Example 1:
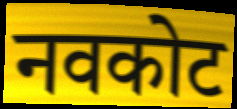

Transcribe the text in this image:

नवकोट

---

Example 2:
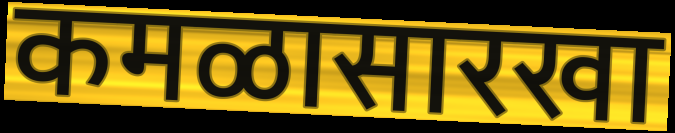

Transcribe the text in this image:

कमळासारखा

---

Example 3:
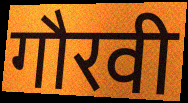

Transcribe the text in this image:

गौरवी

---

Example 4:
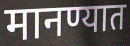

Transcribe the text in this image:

मानण्यात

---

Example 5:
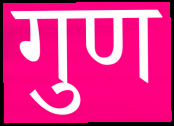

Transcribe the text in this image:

गुण